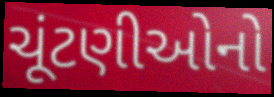
ચૂંટણીઓનો